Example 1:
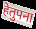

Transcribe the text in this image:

हेतुपना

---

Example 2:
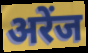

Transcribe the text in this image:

अरेंज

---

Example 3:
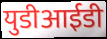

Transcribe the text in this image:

युडीआईडी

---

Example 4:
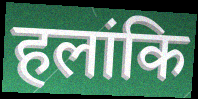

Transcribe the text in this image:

हलांकि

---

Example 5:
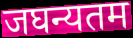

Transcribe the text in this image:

जघन्यतम